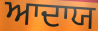
ਆਦਾਯ